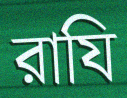
রাযি